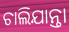
ଚାଲିଯାନ୍ତା